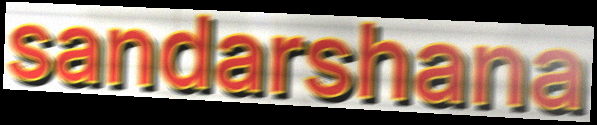
sandarshana